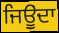
ਜਿਊੂਂਦਾ